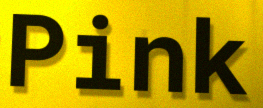
Pink